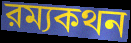
রম্যকথন